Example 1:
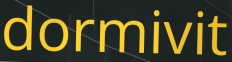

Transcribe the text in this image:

dormivit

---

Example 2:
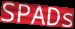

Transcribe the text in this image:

SPADs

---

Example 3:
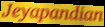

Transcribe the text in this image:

Jeyapandian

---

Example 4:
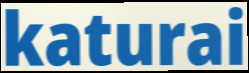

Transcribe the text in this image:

katurai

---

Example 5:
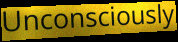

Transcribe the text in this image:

Unconsciously